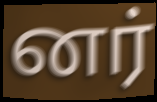
னர்